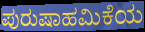
ಪುರುಷಾಹಮಿಕೆಯ